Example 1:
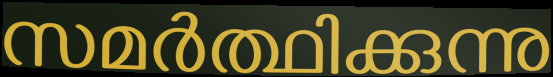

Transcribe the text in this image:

സമർത്ഥിക്കുന്നു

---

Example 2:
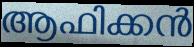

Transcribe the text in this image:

ആഫിക്കൻ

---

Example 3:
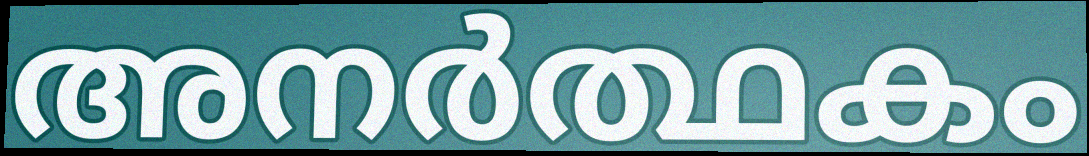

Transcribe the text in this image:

അനർത്ഥകം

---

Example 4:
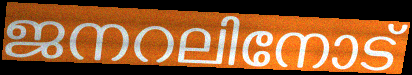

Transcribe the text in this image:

ജനറലിനോട്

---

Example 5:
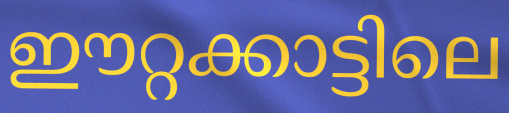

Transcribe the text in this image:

ഈറ്റക്കാട്ടിലെ